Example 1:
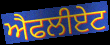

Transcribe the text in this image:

ਐਫਲੀਏਟ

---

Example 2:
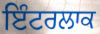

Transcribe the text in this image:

ਇੰਟਰਲਾਕ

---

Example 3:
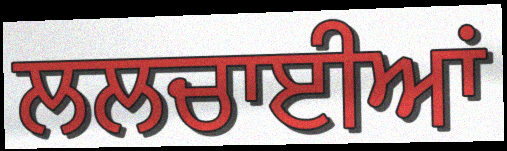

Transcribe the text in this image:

ਲਲਚਾਈਆਂ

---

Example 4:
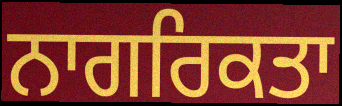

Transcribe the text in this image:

ਨਾਗਰਿਕਤਾ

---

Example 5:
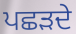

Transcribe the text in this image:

ਪਛੜਦੇ